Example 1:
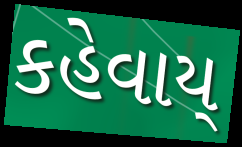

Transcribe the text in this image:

કહેવાય્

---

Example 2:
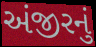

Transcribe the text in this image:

અંજીરનું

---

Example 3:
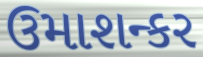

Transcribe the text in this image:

ઉમાશન્કર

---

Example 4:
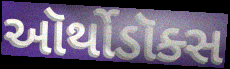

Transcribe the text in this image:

ઑર્થોડૉક્સ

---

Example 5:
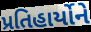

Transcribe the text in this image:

પ્રતિહાર્યોને